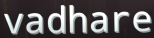
vadhare